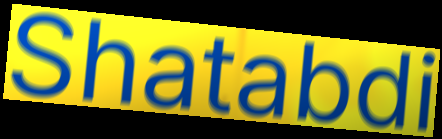
Shatabdi